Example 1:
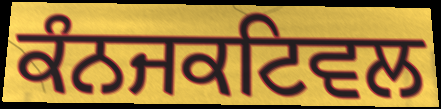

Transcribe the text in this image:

ਕੰਨਜਕਟਿਵਲ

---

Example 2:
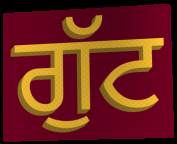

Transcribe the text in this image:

ਗੁੱਟ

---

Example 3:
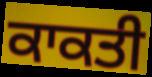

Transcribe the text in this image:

ਕਾਕਤੀ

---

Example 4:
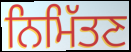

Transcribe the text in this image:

ਨਿਮਿੱਤਣ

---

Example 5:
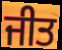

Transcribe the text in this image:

ਜੀਤ